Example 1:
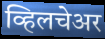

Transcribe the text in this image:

व्हिलचेअर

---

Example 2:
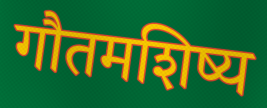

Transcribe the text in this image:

गौतमशिष्य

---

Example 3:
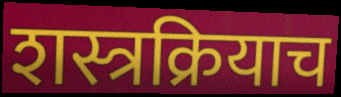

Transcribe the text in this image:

शस्त्रक्रियाच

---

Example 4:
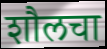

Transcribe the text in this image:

शौलचा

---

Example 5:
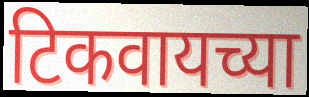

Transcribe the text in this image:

टिकवायच्या